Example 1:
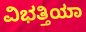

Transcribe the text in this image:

ವಿಭತ್ತಿಯಾ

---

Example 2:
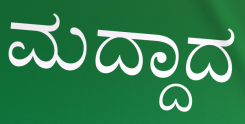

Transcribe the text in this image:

ಮದ್ದಾದ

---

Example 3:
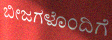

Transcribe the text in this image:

ಬೀಜಗಳೊಂದಿಗೆ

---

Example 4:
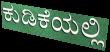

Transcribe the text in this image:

ಕುಡಿಕೆಯಲ್ಲಿ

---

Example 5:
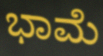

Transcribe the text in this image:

ಭಾಮೆ